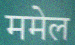
ममेल